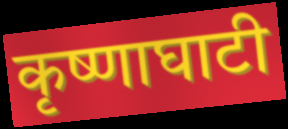
कृष्णाघाटी